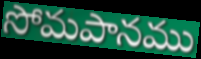
సోమపానము